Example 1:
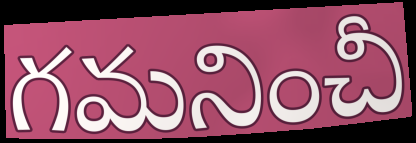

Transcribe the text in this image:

గమనించీ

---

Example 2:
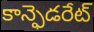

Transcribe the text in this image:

కాన్ఫెడరేట్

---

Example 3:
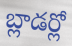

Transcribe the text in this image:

బ్లాడర్లో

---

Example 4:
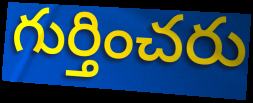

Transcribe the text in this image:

గుర్తించరు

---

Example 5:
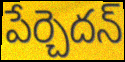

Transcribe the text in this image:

పేర్చెదన్